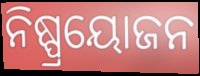
ନିଷ୍ପ୍ରୟୋଜନ